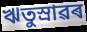
ঋতুস্ৰাৱৰ